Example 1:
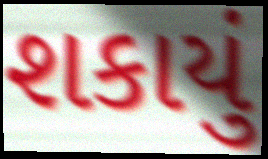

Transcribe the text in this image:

શકાયું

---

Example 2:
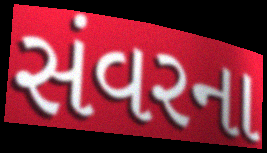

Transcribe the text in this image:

સંવરના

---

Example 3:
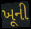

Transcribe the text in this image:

ખૂની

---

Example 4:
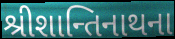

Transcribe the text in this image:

શ્રીશાન્તિનાથના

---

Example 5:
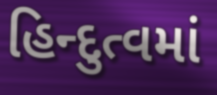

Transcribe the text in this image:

હિન્દુત્વમાં